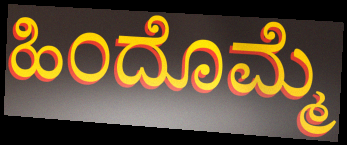
ಹಿಂದೊಮ್ಮೆ